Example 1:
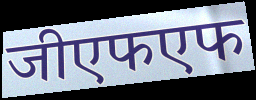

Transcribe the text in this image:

जीएफएफ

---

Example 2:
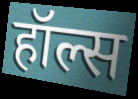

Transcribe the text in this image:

हॉल्स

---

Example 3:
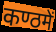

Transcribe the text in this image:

कण्ठमें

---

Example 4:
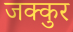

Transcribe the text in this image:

जक्कुर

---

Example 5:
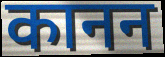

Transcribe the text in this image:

कानन